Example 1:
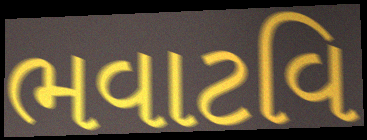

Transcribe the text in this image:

ભવાટવિ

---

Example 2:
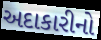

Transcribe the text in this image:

અદાકારીનો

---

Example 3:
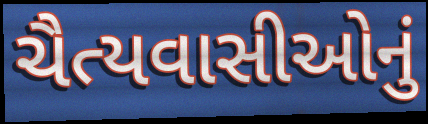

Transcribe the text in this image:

ચૈત્યવાસીઓનું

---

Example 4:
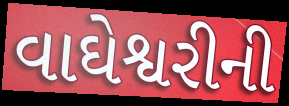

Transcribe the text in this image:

વાઘેશ્વરીની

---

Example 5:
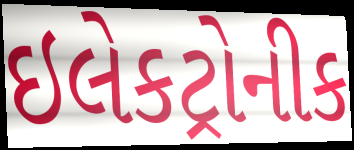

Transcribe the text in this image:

ઇલેકટ્રોનીક